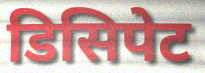
डिसिपेट